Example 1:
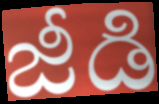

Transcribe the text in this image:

జీడి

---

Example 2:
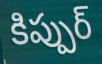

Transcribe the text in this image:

కిప్పుర్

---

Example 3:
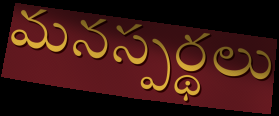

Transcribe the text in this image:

మనస్పర్థలు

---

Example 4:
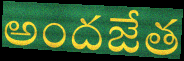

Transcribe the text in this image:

అందజేత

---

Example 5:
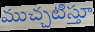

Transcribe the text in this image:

ముచ్చటిస్తూ